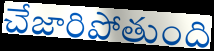
చేజారిపోతుంది